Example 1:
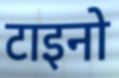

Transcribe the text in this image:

टाइनो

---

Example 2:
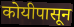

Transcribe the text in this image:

कोयीपासून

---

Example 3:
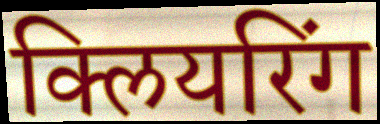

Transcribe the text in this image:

क्लियरिंग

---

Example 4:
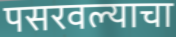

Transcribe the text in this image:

पसरवल्याचा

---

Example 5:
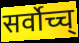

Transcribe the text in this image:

सर्वोच्च्